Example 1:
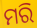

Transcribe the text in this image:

ମରି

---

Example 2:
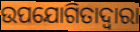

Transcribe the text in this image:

ଉପଯୋଗିତାଦ୍ୱାରା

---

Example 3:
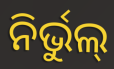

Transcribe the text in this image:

ନିର୍ଭୁଲ୍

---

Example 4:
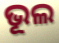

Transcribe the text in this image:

ଭୂଲ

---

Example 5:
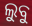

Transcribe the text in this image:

ଲୁବୁ